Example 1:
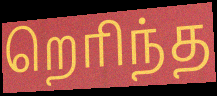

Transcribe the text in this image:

றெரிந்த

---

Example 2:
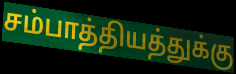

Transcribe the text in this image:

சம்பாத்தியத்துக்கு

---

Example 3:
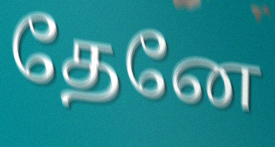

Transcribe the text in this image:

தேனே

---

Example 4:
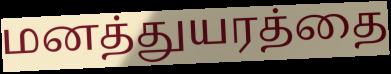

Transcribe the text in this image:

மனத்துயரத்தை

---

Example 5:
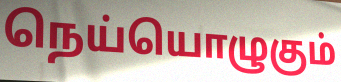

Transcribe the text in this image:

நெய்யொழுகும்